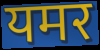
यमर